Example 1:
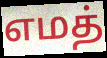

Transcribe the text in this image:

எமத்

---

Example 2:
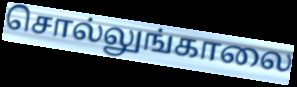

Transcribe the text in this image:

சொல்லுங்காலை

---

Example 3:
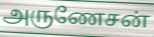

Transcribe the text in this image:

அருணேசன்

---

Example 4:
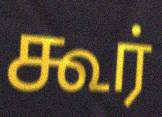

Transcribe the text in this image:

கூர்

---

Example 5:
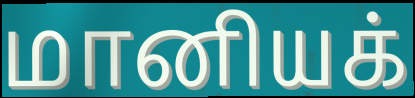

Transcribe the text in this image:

மானியக்